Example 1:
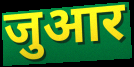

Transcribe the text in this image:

जुआर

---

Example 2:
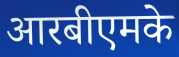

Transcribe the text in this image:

आरबीएमके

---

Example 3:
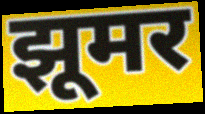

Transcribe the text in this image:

झूमर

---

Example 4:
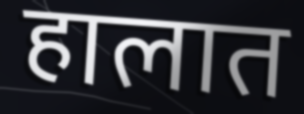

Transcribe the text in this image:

हालात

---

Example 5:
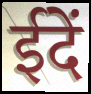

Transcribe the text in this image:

ईदें